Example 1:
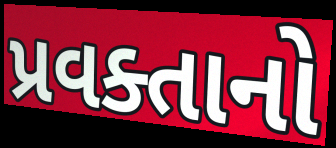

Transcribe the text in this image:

પ્રવક્તાનો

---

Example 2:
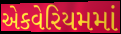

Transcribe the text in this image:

એકવેરિયમમાં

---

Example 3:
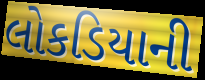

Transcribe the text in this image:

લોકડિયાની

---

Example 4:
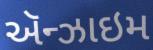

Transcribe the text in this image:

ઍન્ઝાઇમ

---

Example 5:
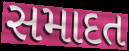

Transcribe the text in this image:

સમાદત